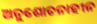
ଅନୁଶୋଚନାହୀନ